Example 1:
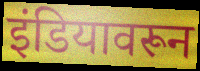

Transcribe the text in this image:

इंडियावरून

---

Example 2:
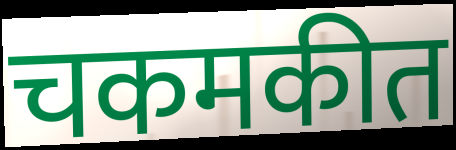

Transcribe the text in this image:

चकमकीत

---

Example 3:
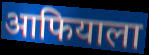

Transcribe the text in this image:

आफियाला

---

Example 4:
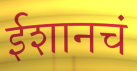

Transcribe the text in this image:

ईशानचं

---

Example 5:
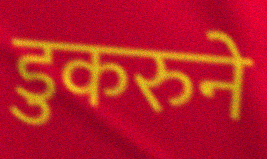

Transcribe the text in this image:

डुकरुने